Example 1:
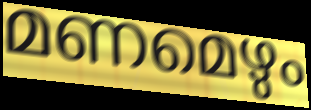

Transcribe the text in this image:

മണമെഴും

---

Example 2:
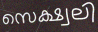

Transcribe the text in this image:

സെക്ഷ്വലി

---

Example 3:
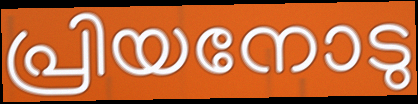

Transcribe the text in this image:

പ്രിയനോടു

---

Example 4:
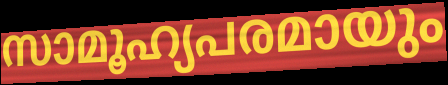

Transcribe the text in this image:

സാമൂഹ്യപരമായും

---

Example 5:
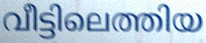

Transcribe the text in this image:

വീട്ടിലെത്തിയ